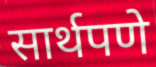
सार्थपणे